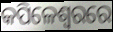
କପିଳେଶ୍ୱରରେ